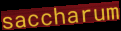
saccharum